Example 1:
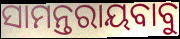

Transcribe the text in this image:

ସାମନ୍ତରାୟବାବୁ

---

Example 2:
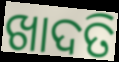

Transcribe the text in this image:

ଖାଦତି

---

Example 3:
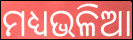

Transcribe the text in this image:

ମଧ୍ୟଭଳିଆ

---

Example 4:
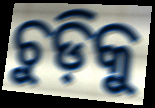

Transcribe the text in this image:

ଚୁଡ଼ିକୁ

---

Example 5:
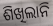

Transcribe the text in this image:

ଶିଖିଲାନି